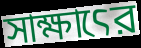
সাক্ষাৎের